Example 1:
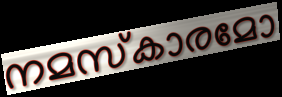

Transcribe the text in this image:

നമസ്കാരമോ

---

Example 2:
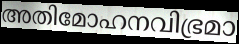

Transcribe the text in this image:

അതിമോഹനവിഭ്രമാ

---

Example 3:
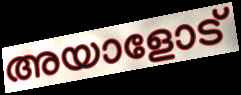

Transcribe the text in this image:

അയാളോട്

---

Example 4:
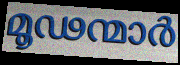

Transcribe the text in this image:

മൂഢന്മാർ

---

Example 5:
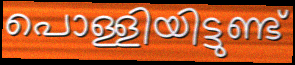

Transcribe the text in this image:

പൊള്ളിയിട്ടുണ്ട്